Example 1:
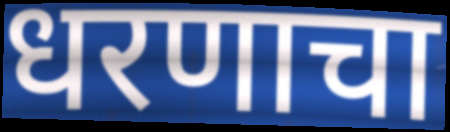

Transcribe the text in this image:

धरणाचा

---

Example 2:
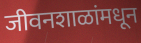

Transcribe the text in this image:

जीवनशाळांमधून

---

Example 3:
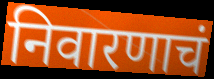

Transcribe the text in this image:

निवारणाचं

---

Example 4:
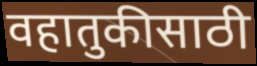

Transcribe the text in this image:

वहातुकीसाठी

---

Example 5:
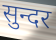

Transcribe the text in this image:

सुन्दर